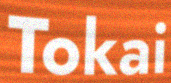
Tokai